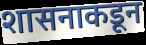
शासनाकडून